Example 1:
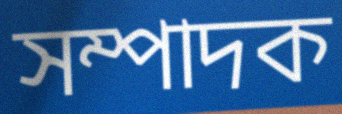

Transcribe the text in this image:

সম্পাদক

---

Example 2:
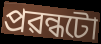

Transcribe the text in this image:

প্ৰৱন্ধটো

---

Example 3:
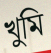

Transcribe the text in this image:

খুমি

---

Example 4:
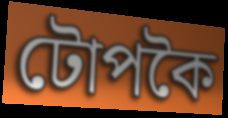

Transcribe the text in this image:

টোপকৈ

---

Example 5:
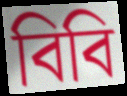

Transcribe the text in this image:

বিবি